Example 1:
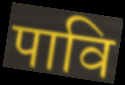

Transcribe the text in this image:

पावि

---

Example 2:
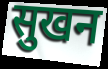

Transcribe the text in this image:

सुखन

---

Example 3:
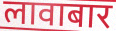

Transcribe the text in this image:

लावाबार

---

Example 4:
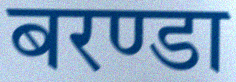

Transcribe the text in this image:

बरण्डा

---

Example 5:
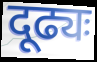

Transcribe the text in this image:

दूढ्यः